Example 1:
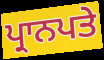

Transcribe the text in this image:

ਪ੍ਰਾਨਪਤੇ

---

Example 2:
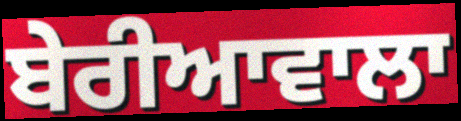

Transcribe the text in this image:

ਬੇਰੀਆਵਾਲਾ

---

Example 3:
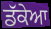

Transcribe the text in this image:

ਡੱਕੇਆ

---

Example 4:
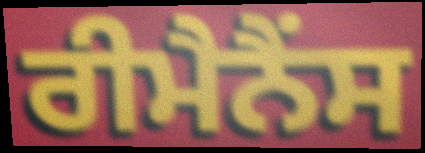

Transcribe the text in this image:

ਰੀਮੈਨੈਂਸ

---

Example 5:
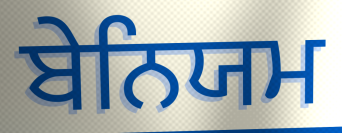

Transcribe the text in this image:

ਬੇਨਿਯਮ